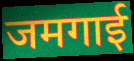
जमगाई